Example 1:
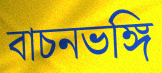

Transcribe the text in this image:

বাচনভঙ্গি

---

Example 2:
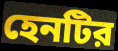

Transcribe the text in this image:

হেনটির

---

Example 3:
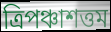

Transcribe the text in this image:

ত্রিপঞ্চাশত্তম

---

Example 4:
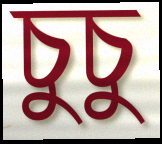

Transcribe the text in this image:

চুচু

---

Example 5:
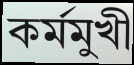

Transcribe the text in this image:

কর্মমুখী